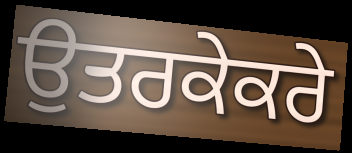
ਉਤਰਕੇਕਰੇ